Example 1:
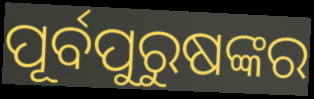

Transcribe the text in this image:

ପୂର୍ବପୁରୁଷଙ୍କର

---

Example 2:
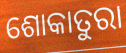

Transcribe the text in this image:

ଶୋକାତୁରା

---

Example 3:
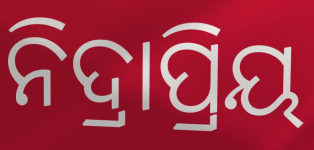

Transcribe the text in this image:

ନିଦ୍ରାପ୍ରିୟ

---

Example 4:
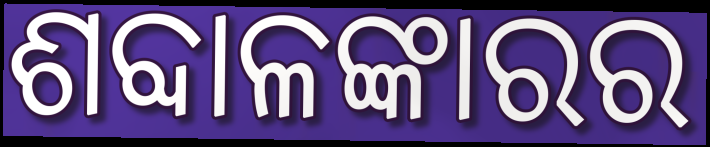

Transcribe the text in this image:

ଶବ୍ଦାଳଙ୍କାରର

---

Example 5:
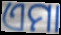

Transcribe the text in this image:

ଏମା